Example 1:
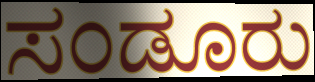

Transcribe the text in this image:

ಸಂಡೂರು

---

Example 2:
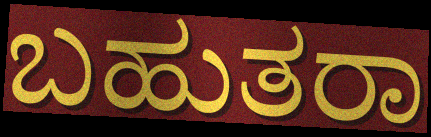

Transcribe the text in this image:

ಬಹುತರಾ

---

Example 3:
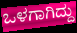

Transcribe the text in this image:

ಒಳಗಾಗಿದ್ದು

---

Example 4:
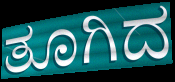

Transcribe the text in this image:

ತೂಗಿದ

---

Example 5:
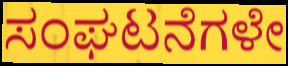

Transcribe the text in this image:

ಸಂಘಟನೆಗಳೇ